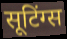
सूटिंग्स